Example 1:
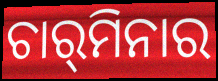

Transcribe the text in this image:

ଚାର୍‌ମିନାର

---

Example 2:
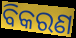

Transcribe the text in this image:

ବିକରଣ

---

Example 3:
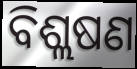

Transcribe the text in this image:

ବିଶ୍ଲଷଣ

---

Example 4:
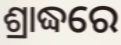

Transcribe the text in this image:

ଶ୍ରାଦ୍ଧରେ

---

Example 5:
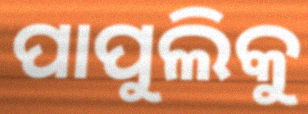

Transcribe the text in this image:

ପାପୁଲିକୁ